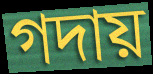
গদায়